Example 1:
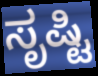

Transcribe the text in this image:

ಸೃಷ್ಟಿ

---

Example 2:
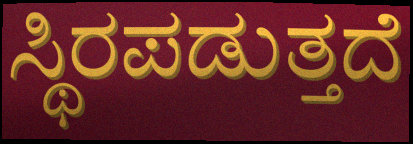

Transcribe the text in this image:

ಸ್ಥಿರಪಡುತ್ತದೆ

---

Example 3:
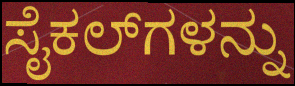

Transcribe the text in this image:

ಸೈಕಲ್‌ಗಳನ್ನು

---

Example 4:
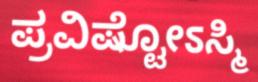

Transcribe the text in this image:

ಪ್ರವಿಷ್ಟೋಽಸ್ಮಿ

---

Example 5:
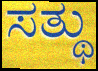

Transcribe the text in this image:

ಸತ್ಥು